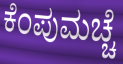
ಕೆಂಪುಮಚ್ಚೆ